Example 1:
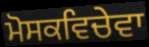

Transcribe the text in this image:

ਮੋਸਕਵਿਚੇਵਾ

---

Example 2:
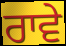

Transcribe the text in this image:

ਰਾਵੇ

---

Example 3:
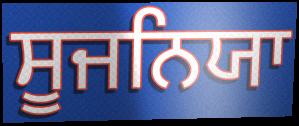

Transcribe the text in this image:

ਸੂਜਨਿਯਾ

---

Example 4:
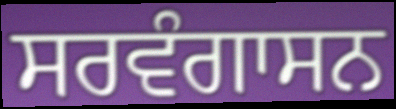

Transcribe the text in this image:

ਸਰਵੰਗਾਸਨ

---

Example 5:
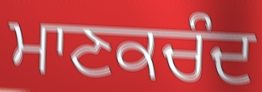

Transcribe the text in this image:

ਮਾਣਕਚੰਦ